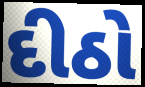
દીઠો